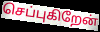
செப்புகிறேன்